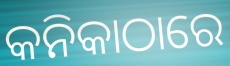
କନିକାଠାରେ